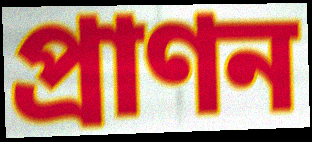
প্রাণন